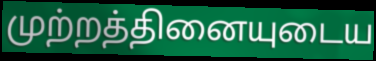
முற்றத்தினையுடைய